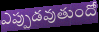
ఎప్పుడవుతుందో